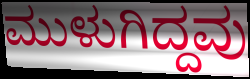
ಮುಳುಗಿದ್ದವು